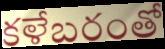
కళేబరంతో